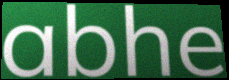
abhe